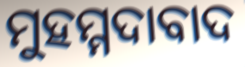
ମୁହମ୍ମଦାବାଦ